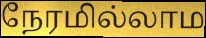
நேரமில்லாம